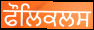
ਫੌਲਿਕਲਸ